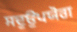
ਸਦੁਉਪਯੋਗ